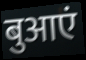
बुआएं